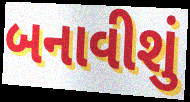
બનાવીશું